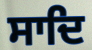
ਸਾਦਿ